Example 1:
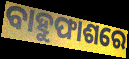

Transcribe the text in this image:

ବାହୁଫାଶରେ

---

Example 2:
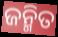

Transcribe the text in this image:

ଜନ୍ମିତ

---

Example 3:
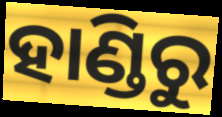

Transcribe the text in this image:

ହାଣ୍ଡିରୁ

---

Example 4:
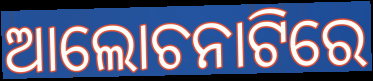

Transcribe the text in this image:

ଆଲୋଚନାଟିରେ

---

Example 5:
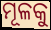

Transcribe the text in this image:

ମୂଳକୁ